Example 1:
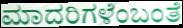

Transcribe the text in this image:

ಮಾದರಿಗಳೆಂಬಂತೆ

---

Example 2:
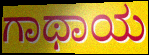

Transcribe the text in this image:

ಗಾಥಾಯ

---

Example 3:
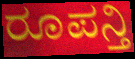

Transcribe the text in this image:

ರೂಪನ್ತಿ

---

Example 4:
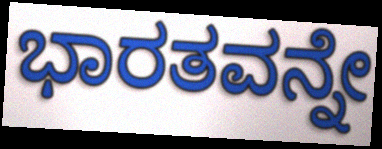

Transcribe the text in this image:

ಭಾರತವನ್ನೇ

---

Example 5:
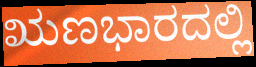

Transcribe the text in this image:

ಋಣಭಾರದಲ್ಲಿ